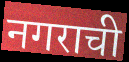
नगराची